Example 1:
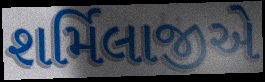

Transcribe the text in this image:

શર્મિલાજીએ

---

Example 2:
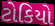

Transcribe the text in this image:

ટોકિયો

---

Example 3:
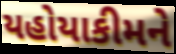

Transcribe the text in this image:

યહોયાકીમને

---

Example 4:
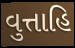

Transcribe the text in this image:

વુત્તાહિ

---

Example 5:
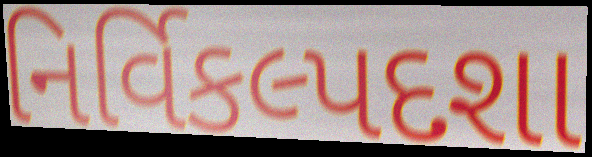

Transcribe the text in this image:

નિર્વિકલ્પદશા